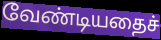
வேண்டியதைச்